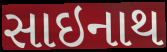
સાઇનાથ